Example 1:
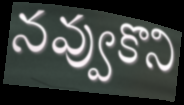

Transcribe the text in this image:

నవ్వుకొని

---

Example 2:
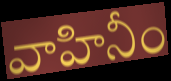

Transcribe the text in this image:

వాహినీం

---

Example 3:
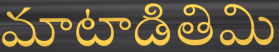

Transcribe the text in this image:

మాటాడితిమి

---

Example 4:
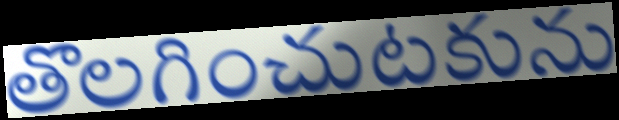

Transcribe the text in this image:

తొలగించుటకును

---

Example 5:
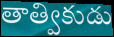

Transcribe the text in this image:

తాత్వికుడు